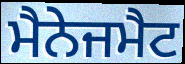
ਮੈਨੇਜਮੈਟ